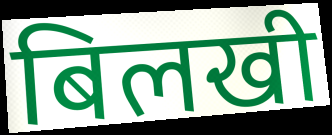
बिलखी